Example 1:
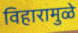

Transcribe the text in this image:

विहारामुळे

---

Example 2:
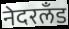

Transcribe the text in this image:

नेदरलँड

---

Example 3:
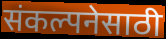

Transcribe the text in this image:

संकल्पनेसाठी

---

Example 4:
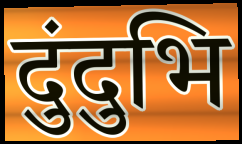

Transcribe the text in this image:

दुंदुभि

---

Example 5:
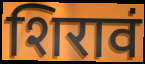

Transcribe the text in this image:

शिरावं